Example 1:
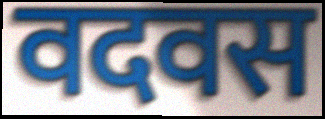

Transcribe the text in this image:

वदवस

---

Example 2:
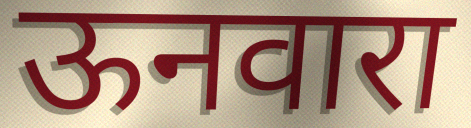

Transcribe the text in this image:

ऊनवारा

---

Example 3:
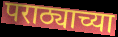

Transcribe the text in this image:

पराठ्याच्या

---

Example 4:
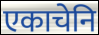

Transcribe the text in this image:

एकाचेनि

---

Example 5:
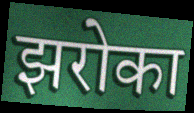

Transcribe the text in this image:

झरोका